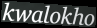
kwalokho